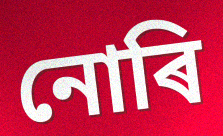
নোৰি